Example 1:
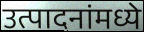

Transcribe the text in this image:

उत्पादनांमध्ये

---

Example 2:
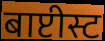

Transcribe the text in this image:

बाप्टीस्ट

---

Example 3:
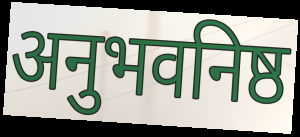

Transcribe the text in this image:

अनुभवनिष्ठ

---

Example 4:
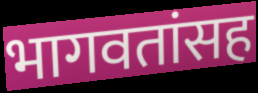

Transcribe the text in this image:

भागवतांसह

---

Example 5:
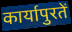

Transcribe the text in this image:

कार्यापुरतें